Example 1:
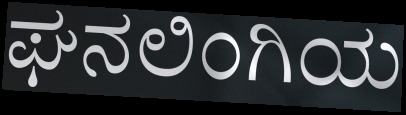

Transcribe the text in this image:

ಘನಲಿಂಗಿಯ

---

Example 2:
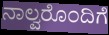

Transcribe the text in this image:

ನಾಲ್ವರೊಂದಿಗೆ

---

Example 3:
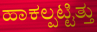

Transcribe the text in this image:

ಹಾಕಲ್ಪಟ್ಟಿತ್ತು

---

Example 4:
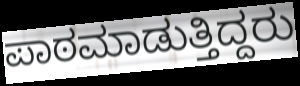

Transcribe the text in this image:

ಪಾಠಮಾಡುತ್ತಿದ್ದರು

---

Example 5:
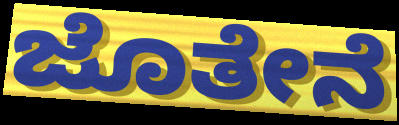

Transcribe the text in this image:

ಜೊತೇನೆ